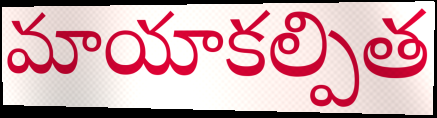
మాయాకల్పిత